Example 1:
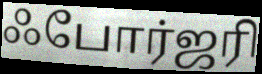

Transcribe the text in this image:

ஃபோர்ஜரி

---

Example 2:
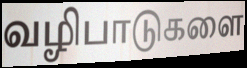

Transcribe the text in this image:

வழிபாடுகளை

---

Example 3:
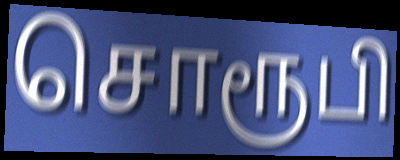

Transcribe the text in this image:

சொரூபி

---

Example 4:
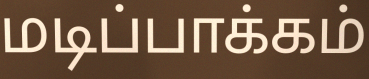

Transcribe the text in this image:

மடிப்பாக்கம்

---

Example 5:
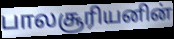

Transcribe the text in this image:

பாலசூரியனின்